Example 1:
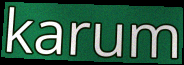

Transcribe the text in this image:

karum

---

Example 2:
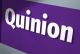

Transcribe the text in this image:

Quinion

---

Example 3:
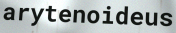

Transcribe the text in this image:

arytenoideus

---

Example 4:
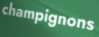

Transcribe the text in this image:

champignons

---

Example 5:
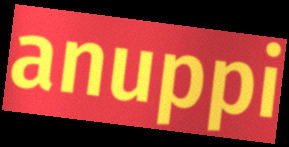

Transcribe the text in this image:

anuppi